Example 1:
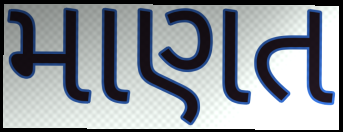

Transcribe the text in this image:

માણત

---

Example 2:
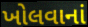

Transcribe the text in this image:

ખોલવાનાં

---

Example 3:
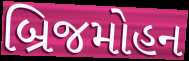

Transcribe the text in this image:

બ્રિજમોહન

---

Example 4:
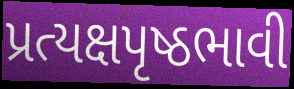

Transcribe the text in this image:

પ્રત્યક્ષપૃષ્ઠભાવી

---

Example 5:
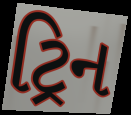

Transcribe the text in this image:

ટ્રિન